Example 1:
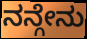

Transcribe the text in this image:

ನನ್ಗೇನು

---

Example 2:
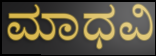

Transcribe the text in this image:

ಮಾಧವಿ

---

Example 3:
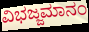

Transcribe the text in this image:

ವಿಭಜ್ಜಮಾನಂ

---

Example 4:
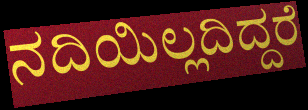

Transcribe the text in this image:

ನದಿಯಿಲ್ಲದಿದ್ದರೆ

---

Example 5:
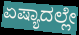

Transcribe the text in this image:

ಏಷ್ಯಾದಲ್ಲೇ